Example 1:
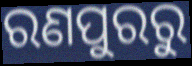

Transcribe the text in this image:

ରଣପୁରରୁ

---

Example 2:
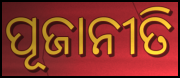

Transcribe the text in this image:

ପୂଜାନୀତି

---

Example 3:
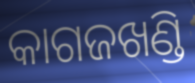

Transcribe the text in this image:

କାଗଜଖଣ୍ଡି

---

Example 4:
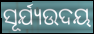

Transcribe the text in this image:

ସୂର୍ଯ୍ୟଉଦୟ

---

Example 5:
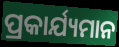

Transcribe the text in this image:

ପ୍ରକାର୍ଯ୍ୟମାନ